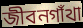
জীবনগাঁথা